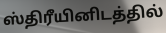
ஸ்திரீயினிடத்தில்